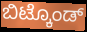
ಬಿಟ್ಕೊಂಡ್